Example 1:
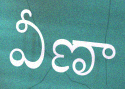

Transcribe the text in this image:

వీణా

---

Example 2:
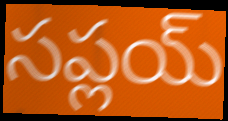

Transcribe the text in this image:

సప్లయ్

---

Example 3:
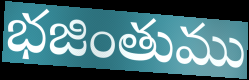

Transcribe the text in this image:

భజింతుము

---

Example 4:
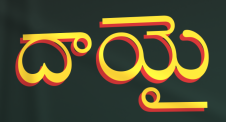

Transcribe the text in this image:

దాయై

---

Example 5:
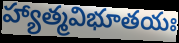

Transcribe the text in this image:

హ్యాత్మవిభూతయః